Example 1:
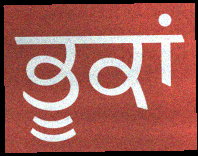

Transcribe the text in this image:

ਭੂਕਾਂ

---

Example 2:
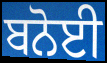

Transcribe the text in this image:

ਬਨੋਈ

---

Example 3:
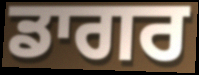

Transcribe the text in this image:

ਡਾਗਰ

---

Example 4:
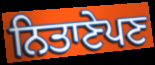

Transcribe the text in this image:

ਨਿਤਾਣੇਪਣ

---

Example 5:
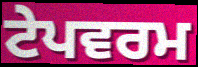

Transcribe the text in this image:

ਟੇਪਵਰਮ